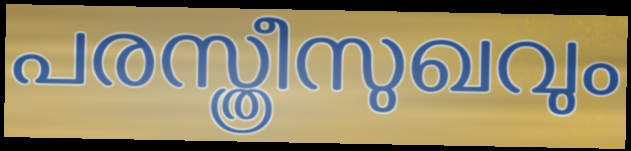
പരസ്ത്രീസുഖവും